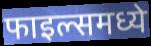
फाइल्समध्ये